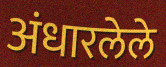
अंधारलेले